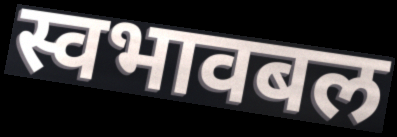
स्वभावबल